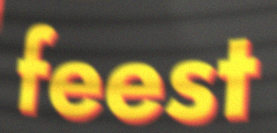
feest